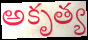
అకృత్య